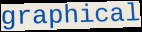
graphical